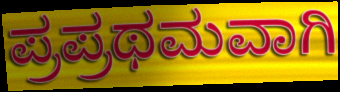
ಪ್ರಪ್ರಥಮವಾಗಿ